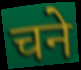
चने